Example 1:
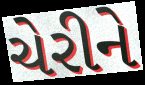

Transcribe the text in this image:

ચેરીને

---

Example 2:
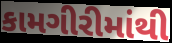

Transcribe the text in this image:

કામગીરીમાંથી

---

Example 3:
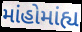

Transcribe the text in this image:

માંહોમાંહ્ય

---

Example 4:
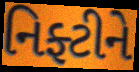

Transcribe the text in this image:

નિફ્ટીને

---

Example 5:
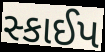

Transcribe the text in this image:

સ્કાઈપ